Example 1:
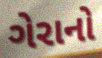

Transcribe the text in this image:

ગેરાનો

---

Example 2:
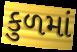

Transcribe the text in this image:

કુળમાં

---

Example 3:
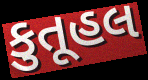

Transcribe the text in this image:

કુતૂહલ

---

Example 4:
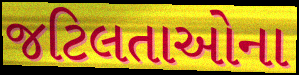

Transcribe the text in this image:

જટિલતાઓના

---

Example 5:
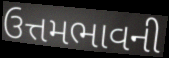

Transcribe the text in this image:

ઉત્તમભાવની